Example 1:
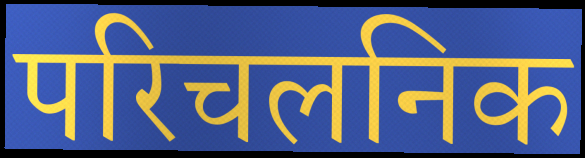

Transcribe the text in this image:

परिचलनिक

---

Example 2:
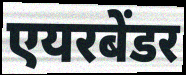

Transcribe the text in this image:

एयरबेंडर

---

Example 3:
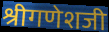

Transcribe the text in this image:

श्रीगणेशजी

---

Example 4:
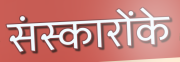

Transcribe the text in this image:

संस्कारोंके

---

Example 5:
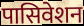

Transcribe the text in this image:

पासिवेशन